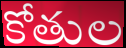
కోతుల